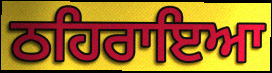
ਠਹਿਰਾਇਆ